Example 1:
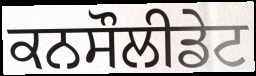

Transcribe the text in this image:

ਕਨਸੌਲੀਡੇਟ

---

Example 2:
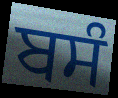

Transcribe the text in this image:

ਬਸੰ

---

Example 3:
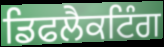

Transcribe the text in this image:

ਡਿਫਲੈਕਟਿੰਗ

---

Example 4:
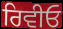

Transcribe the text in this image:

ਰਿਵੀਓ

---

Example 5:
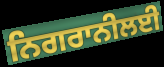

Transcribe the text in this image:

ਨਿਗਰਾਨੀਲਈ